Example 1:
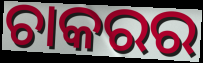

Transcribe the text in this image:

ଚାକରର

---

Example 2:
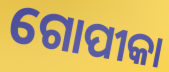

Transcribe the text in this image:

ଗୋପୀକା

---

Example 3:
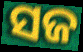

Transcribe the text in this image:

ସଜ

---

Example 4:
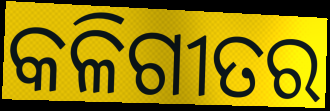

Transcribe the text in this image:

କଳିଗୀତର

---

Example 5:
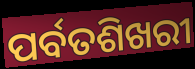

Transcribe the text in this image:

ପର୍ବତଶିଖରୀ